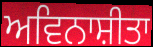
ਅਵਿਨਾਸ਼ੀਤਾ